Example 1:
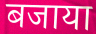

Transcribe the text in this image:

बजाया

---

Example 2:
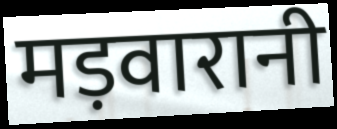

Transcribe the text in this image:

मड़वारानी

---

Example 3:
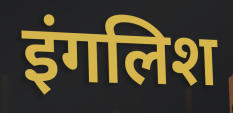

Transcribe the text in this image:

इंगलिश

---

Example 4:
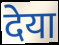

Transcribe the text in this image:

देया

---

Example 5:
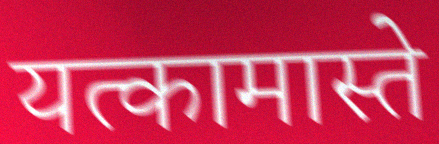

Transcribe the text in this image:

यत्कामास्ते